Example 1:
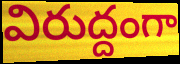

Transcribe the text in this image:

విరుద్దంగా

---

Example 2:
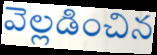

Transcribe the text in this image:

వెల్లడించిన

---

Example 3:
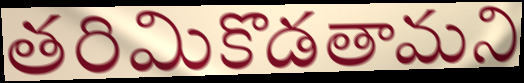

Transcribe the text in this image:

తరిమికొడతామని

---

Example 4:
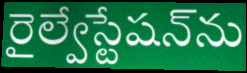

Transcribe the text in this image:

రైల్వేస్టేషన్‌ను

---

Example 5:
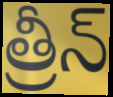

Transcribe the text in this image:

త్రీన్